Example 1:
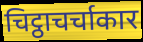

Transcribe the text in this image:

चिट्ठाचर्चाकार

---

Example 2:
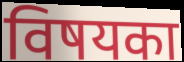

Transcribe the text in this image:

विषयका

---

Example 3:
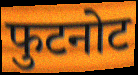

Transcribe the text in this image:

फुटनोट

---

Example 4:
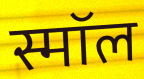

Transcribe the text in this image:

स्मॉल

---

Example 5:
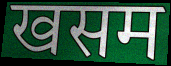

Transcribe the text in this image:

खसम